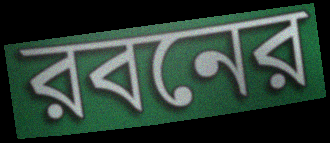
রবনের